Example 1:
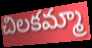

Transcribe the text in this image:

చిలకమ్మా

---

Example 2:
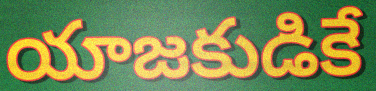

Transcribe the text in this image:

యాజకుడికే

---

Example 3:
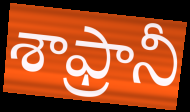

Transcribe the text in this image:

శాఫ్రానీ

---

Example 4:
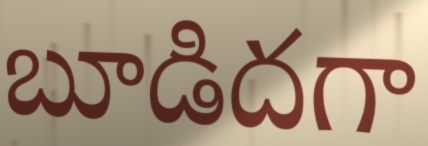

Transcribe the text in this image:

బూడిదగా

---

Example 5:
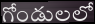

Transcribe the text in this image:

గోండులలో